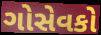
ગોસેવકો